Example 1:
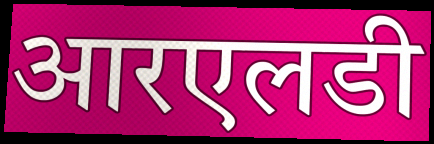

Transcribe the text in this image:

आरएलडी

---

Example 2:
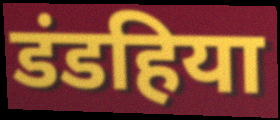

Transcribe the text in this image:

डंडहिया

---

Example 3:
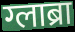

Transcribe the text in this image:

ग्लाब्रा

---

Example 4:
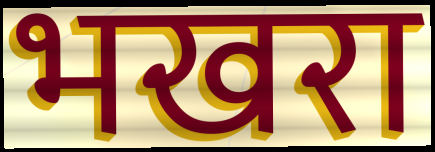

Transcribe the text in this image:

भखरा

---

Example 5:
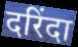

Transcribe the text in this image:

दरिंदा